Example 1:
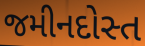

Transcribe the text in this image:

જમીનદોસ્ત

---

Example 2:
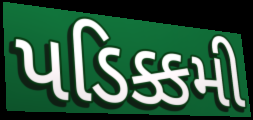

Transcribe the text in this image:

પડિક્કમી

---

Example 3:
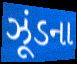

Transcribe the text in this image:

ઝૂંડના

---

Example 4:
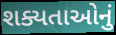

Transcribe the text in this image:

શક્યતાઓનું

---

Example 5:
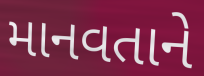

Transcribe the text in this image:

માનવતાને